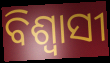
ବିଶ୍ୱାସୀ